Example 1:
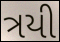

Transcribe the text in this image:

ત્રયી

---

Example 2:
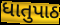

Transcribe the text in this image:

ધાતુપાઠ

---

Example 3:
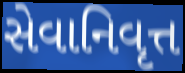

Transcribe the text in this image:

સેવાનિવૃત્ત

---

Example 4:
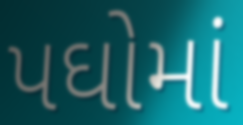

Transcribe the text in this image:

પઘોમાં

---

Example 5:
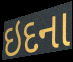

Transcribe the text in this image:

ઇદના